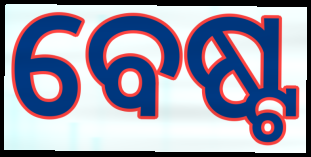
ବେଷ୍ଟ